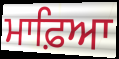
ਮਾਫ਼ਿਆ